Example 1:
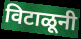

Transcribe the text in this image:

विटाळूनी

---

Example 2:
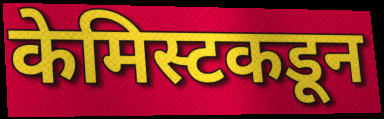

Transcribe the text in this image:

केमिस्टकडून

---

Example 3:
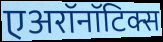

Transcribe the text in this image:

एअरॉनॉटिक्स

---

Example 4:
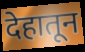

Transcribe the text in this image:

देहातून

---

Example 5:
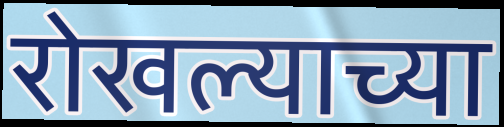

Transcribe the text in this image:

रोखल्याच्या